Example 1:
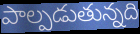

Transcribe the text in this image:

పాల్పడుతున్నది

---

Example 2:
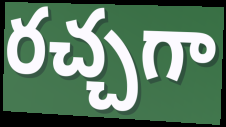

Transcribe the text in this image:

రచ్చగా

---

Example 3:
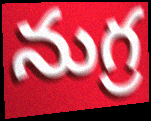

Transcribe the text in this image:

నుగ్ర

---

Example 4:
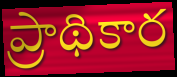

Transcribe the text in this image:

ప్రాథికార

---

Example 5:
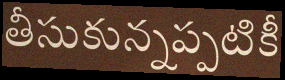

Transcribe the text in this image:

తీసుకున్నప్పటికీ